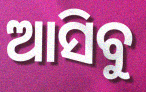
ଆସିବୁ